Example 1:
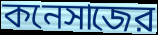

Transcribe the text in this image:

কনেসাজের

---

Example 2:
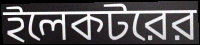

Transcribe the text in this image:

ইলেকটরের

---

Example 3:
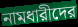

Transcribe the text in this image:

নামধারীদের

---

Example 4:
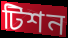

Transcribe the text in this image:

টিশন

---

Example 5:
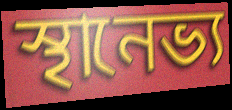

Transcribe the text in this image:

স্থানেভ্য